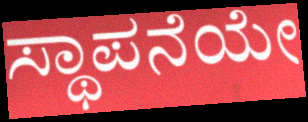
ಸ್ಥಾಪನೆಯೇ